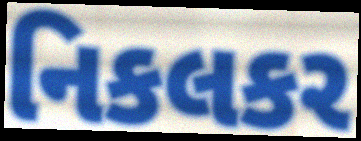
નિકલકર